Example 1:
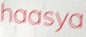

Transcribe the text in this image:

haasya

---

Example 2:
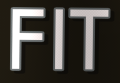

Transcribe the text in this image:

FIT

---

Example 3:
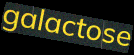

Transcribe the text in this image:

galactose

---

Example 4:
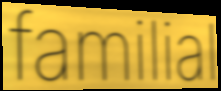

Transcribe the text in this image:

familial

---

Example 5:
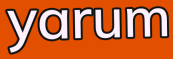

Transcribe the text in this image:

yarum